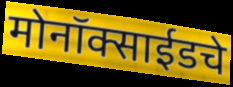
मोनॉक्साईडचे